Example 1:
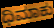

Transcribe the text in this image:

ಧಿಮಾಕು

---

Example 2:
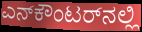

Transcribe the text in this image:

ಎನ್‌ಕೌಂಟರ್‌ನಲ್ಲಿ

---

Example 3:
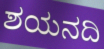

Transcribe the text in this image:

ಶಯನದಿ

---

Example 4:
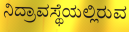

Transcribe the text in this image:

ನಿದ್ರಾವಸ್ಥೆಯಲ್ಲಿರುವ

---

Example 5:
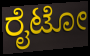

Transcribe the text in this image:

ರೈಟೋ